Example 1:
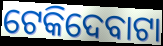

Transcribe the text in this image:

ଟେକିଦେବାଟା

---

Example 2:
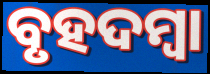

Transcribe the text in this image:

ବୃହଦମ୍ବା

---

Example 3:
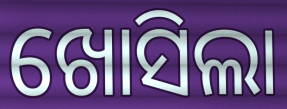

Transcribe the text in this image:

ଖୋସିଲା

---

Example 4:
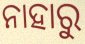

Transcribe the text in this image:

ନାହାରୁ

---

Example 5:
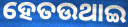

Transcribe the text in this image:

ହେତଉଥାଇ